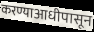
करण्याआधीपासून